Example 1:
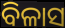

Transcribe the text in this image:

ବିଳାସ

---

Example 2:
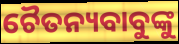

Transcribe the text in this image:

ଚୈତନ୍ୟବାବୁଙ୍କୁ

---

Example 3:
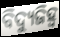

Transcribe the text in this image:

ବିଦ୍ୟୁଜିହ୍ୱ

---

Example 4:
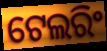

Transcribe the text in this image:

ଟେଲରିଂ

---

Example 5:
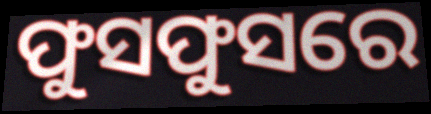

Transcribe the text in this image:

ଫୁସଫୁସରେ